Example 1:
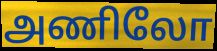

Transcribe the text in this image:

அணிலோ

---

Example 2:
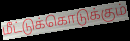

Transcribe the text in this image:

மீட்டுக்கொடுக்கும்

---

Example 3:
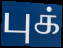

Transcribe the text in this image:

புக்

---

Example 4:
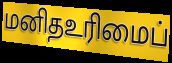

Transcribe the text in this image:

மனிதஉரிமைப்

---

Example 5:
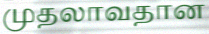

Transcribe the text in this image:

முதலாவதான